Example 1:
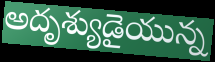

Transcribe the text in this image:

అదృశ్యుడైయున్న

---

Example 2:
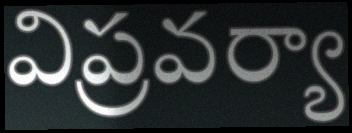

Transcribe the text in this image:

విప్రవర్యా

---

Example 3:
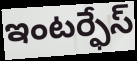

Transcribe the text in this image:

ఇంటర్ఫేస్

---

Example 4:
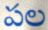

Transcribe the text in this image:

పల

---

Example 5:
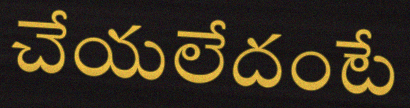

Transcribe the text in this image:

చేయలేదంటే